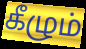
கீழும்